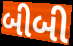
બીબી